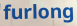
furlong